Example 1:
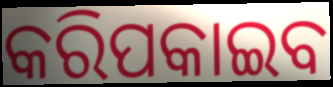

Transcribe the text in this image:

କରିପକାଇବ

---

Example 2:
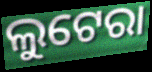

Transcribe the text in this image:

ଲୁଟେରା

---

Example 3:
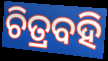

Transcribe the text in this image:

ଚିତ୍ରବହି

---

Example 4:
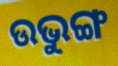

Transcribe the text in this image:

ଉଭୁଙ୍ଗ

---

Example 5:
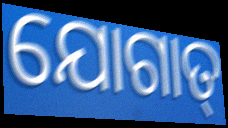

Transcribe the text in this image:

ଯୋଗାତ୍